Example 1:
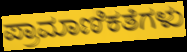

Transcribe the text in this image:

ಪ್ರಾಮಾಣಿಕತೆಗಳು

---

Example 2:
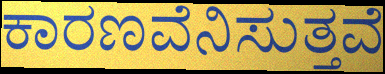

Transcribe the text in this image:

ಕಾರಣವೆನಿಸುತ್ತವೆ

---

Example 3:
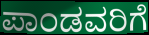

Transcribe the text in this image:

ಪಾಂಡವರಿಗೆ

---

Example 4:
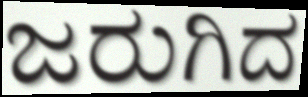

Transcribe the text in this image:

ಜರುಗಿದ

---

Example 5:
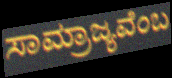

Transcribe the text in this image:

ಸಾಮ್ರಾಜ್ಯವೆಂಬ